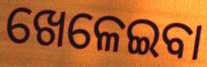
ଖେଳେଇବା